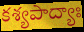
కశ్యపాద్యాః